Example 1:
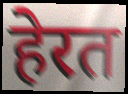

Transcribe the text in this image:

हेरत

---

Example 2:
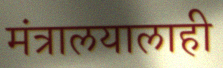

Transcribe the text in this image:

मंत्रालयालाही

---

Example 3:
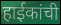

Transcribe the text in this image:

हाईकांची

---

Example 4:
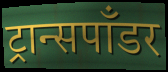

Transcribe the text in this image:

ट्रान्सपाँडर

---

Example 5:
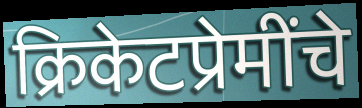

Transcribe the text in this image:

क्रिकेटप्रेमींचे